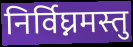
निर्विघ्नमस्तु